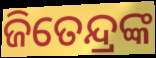
ଜିତେନ୍ଦ୍ରଙ୍କ